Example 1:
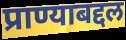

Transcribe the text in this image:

प्राण्याबद्दल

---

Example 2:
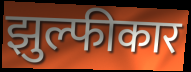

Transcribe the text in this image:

झुल्फीकार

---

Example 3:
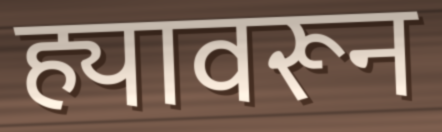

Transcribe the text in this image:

ह्यावरून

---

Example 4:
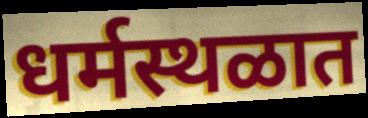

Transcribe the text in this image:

धर्मस्थळात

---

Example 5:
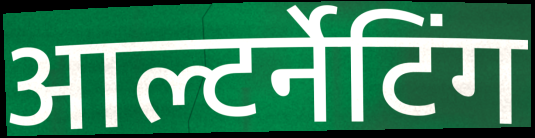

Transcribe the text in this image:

आल्टर्नेटिंग